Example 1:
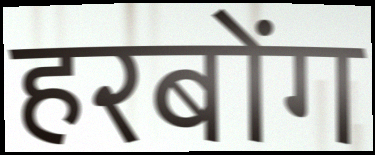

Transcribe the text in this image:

हरबोंग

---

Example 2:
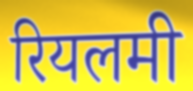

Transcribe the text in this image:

रियलमी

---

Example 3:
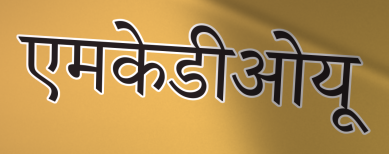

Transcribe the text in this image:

एमकेडीओयू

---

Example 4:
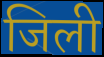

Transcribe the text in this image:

जिली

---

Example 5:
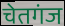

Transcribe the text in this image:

चेतगंज